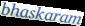
bhaskaram